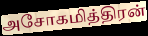
அசோகமித்திரன்